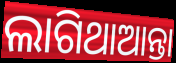
ଲାଗିଥାଆନ୍ତା